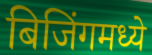
बिजिंगमध्ये